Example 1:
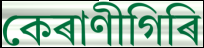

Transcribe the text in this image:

কেৰাণীগিৰি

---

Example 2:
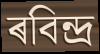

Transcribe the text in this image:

ৰবিন্দ্ৰ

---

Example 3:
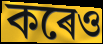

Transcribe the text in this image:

কৰেও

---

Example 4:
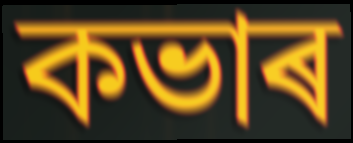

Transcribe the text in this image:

কভাৰ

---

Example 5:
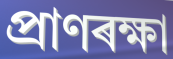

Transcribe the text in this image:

প্ৰাণৰক্ষা